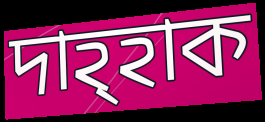
দাহ্হাক